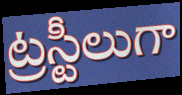
ట్రస్టీలుగా